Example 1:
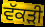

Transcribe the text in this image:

ਵੱਕੜੀ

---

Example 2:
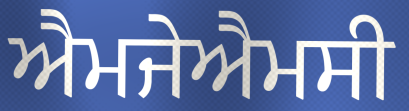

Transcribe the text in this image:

ਐਮਜੇਐਮਸੀ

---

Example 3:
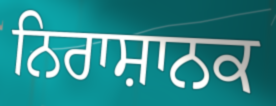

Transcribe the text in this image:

ਨਿਰਾਸ਼ਾਨਕ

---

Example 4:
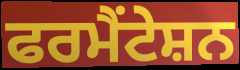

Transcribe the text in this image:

ਫਰਮੈਂਟੇਸ਼ਨ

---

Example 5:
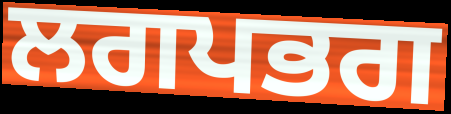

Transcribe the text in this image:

ਲਗਪਭਗ